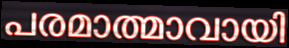
പരമാത്മാവായി